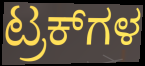
ಟ್ರಕ್‌ಗಳ